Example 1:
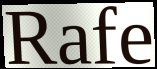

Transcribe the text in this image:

Rafe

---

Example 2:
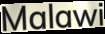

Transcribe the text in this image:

Malawi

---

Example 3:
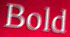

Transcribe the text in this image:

Bold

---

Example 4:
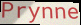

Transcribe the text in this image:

Prynne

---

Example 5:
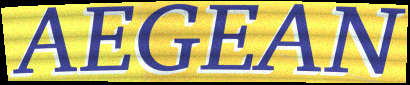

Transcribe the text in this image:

AEGEAN